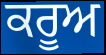
ਕਰੂਅ